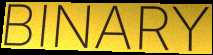
BINARY